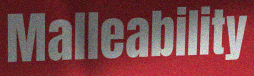
Malleability